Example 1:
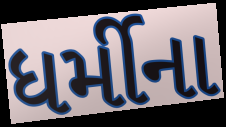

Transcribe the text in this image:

ધર્મીના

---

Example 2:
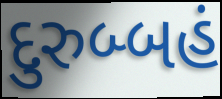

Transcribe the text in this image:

દુરુબ્બહં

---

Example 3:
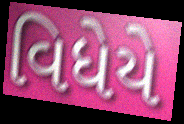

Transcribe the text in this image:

વિધેયે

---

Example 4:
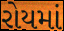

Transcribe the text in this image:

રોયમાં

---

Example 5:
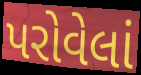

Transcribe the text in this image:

પરોવેલાં